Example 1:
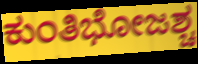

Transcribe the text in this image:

ಕುಂತಿಭೋಜಶ್ಚ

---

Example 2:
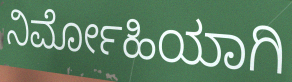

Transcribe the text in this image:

ನಿರ್ಮೋಹಿಯಾಗಿ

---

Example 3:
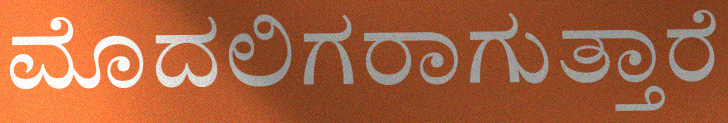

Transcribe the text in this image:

ಮೊದಲಿಗರಾಗುತ್ತಾರೆ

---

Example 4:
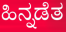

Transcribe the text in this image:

ಹಿನ್ನಡೆತ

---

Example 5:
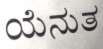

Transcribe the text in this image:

ಯೆನುತ